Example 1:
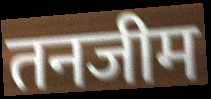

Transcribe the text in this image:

तनजीम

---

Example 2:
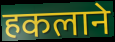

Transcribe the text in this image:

हकलाने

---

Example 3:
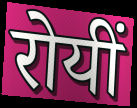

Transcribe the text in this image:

रोयीं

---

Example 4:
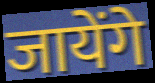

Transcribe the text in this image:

जायेंगे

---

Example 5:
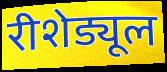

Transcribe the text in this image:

रीशेड्यूल